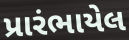
પ્રારંભાયેલ